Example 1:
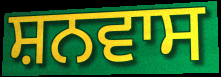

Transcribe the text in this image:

ਸ਼ਨਵਾਸ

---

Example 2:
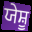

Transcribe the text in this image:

ਯੇਸ਼ੂ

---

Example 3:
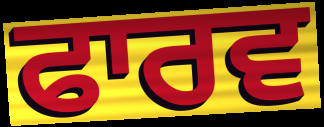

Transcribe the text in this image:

ਫਾਰਵ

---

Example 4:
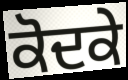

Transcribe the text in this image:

ਕੋਦਕੇ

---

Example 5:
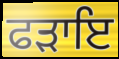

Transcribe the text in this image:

ਫੜਾਇ